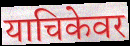
याचिकेवर